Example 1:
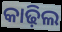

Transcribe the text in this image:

କାଢ଼ିଲ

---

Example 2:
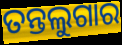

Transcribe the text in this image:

ତନ୍ତଲୁଗାର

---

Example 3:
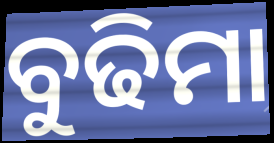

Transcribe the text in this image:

ବୁଢିମା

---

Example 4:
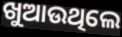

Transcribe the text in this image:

ଖୁଆଉଥିଲେ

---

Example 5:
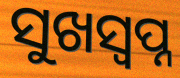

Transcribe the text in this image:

ସୁଖସ୍ୱପ୍ନ